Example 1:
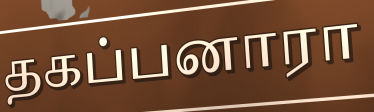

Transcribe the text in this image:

தகப்பனாரா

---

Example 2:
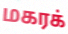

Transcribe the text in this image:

மகரக்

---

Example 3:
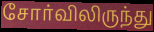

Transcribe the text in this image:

சோர்விலிருந்து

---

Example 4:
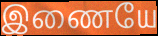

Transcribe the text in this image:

இணையே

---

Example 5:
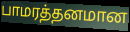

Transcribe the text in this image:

பாமரத்தனமான